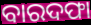
ବାରଦଫା